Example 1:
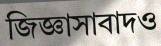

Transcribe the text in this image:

জিজ্ঞাসাবাদও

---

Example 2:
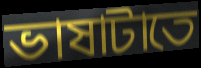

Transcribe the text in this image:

ভাষাটাতে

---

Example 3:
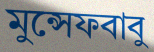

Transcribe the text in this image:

মুন্সেফবাবু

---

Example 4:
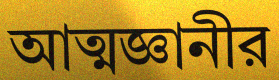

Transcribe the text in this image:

আত্মজ্ঞানীর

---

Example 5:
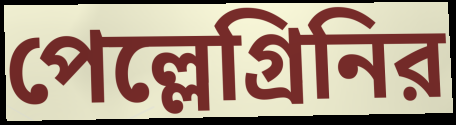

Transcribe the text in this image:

পেল্লেগ্রিনির